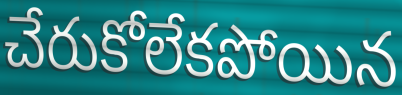
చేరుకోలేకపోయిన